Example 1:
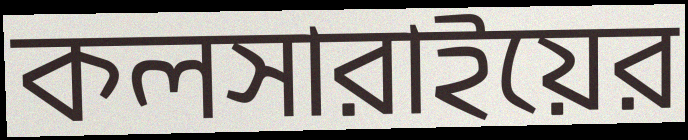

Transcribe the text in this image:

কলসারাইয়ের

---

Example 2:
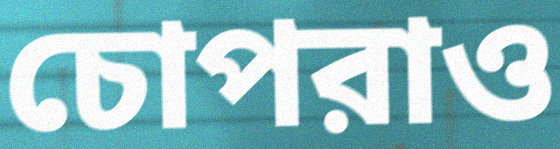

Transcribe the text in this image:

চোপরাও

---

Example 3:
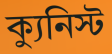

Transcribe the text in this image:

ক্যুনিস্ট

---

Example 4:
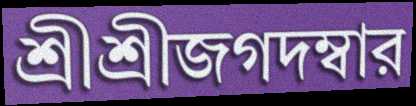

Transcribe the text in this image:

শ্রীশ্রীজগদম্বার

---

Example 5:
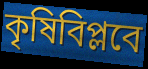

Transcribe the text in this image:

কৃষিবিপ্লবে